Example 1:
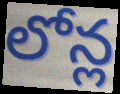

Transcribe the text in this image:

లోన్ల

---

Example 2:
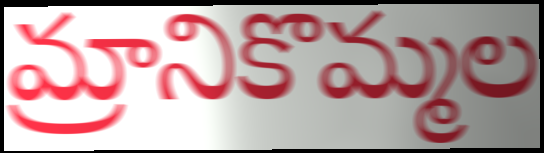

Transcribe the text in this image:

మ్రానికొమ్మల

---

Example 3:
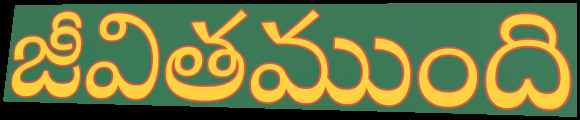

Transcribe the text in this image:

జీవితముంది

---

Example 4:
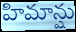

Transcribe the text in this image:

హిమాన్షు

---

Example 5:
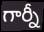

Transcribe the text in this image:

గార్నీ